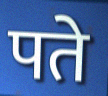
पते